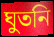
ঘুতনি